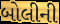
બોલીની